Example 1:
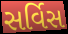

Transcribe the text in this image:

સર્વિસ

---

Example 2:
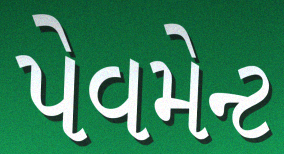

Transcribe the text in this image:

પેવમેન્ટ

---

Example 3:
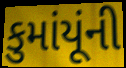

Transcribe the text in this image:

કુમાંયૂંની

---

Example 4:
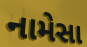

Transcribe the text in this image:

નામેસા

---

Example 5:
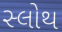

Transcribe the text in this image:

સ્લોથ